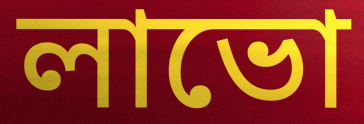
লাভো